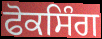
ਫੋਕਸਿੰਗ